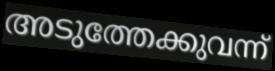
അടുത്തേക്കുവന്ന്